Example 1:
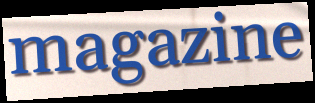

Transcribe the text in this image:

magazine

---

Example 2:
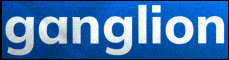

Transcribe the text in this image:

ganglion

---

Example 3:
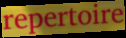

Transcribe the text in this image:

repertoire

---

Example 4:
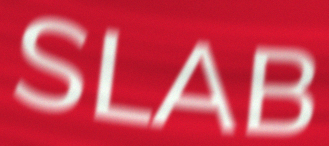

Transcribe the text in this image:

SLAB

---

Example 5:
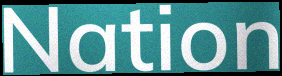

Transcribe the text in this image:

Nation